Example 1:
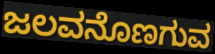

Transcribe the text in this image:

ಜಲವನೊಣಗುವ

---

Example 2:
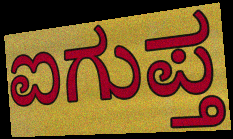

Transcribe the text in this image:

ಐಗುಪ್ತ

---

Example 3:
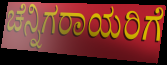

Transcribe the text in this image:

ಚೆನ್ನಿಗರಾಯರಿಗೆ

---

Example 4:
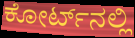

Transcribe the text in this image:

ಕೋರ್ಟ್‌ನಲ್ಲಿ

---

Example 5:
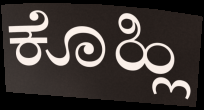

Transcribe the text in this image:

ಕೊಹ್ಲಿ